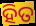
ହିତ